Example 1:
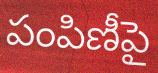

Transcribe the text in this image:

పంపిణీపై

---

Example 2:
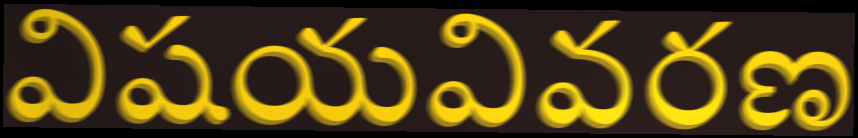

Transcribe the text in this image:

విషయవివరణ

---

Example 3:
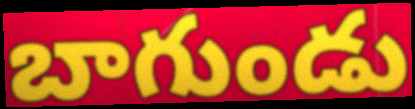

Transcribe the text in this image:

బాగుండు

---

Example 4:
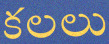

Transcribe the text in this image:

కలలు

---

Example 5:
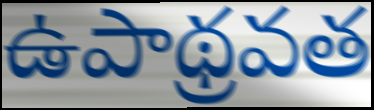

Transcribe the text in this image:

ఉపాథ్రవత